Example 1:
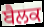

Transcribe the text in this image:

ਬੈਲਕ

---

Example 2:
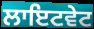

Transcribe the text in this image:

ਲਾਇਟਵੇਟ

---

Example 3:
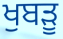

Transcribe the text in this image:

ਖੁਬੜੂ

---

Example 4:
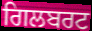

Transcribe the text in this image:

ਗਿਲਬਰਟ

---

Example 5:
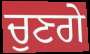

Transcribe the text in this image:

ਚੁਣਗੇ